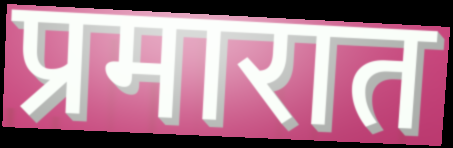
प्रमारात